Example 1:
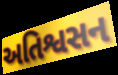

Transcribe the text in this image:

અતિશ્વસન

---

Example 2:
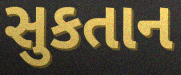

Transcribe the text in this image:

સુકતાન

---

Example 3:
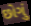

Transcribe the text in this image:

છોગું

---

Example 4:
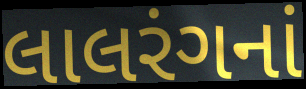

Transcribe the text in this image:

લાલરંગનાં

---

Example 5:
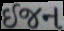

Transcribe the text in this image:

ઈજન